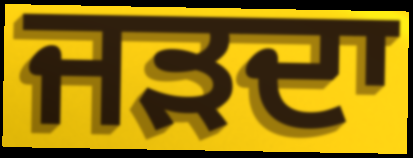
ਜੜਦਾ